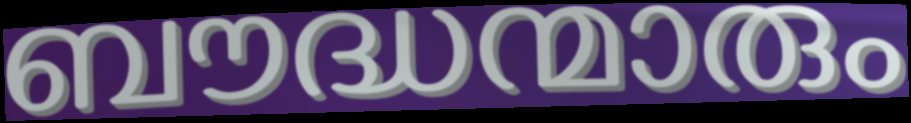
ബൗദ്ധന്മാരും